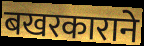
बखरकाराने